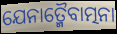
ଯେନାତ୍ମୈବାତ୍ମନା